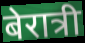
बेरात्री